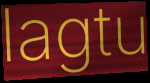
lagtu